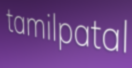
tamilpatal